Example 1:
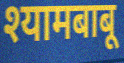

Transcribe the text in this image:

श्यामबाबू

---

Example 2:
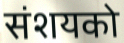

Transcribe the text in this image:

संशयको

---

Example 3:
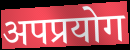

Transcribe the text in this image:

अपप्रयोग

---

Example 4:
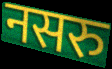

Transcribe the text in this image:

नसरु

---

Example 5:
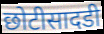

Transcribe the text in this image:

छोटीसादडी